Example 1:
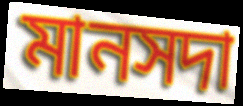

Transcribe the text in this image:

মানসদা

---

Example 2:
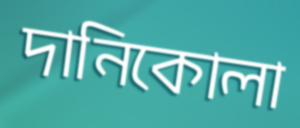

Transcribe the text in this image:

দানিকোলা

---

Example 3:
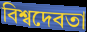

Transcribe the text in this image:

বিশ্বদেবতা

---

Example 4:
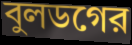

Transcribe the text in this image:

বুলডগের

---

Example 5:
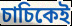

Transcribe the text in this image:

চাচিকেই